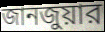
জানজুয়ার